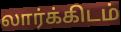
லார்க்கிடம்